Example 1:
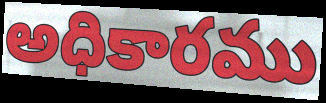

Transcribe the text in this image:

అధికారము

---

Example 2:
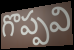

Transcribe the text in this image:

గొప్పవి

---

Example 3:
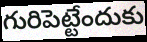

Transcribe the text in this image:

గురిపెట్టేందుకు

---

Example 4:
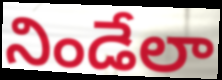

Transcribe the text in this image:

నిండేలా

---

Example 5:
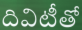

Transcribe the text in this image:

దివిటీతో